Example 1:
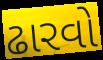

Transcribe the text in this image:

ઢારવો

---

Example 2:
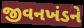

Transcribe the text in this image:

જીવનખંડને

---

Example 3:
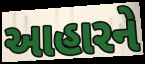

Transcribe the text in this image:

આહારને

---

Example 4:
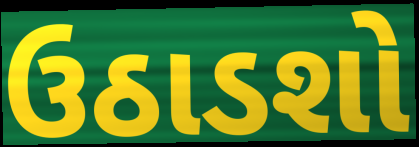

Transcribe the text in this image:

ઉઠાડશો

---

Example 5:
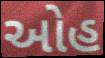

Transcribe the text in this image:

ઓહ